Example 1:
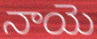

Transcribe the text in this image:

నాయె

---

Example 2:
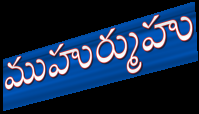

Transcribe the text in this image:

ముహుర్ముహు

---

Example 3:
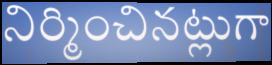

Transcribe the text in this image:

నిర్మించినట్లుగా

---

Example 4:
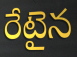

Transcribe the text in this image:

రేటైన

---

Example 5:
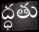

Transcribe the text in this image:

ద్ధతు